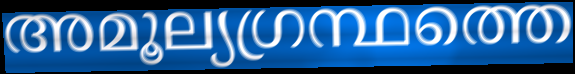
അമൂല്യഗ്രന്ഥത്തെ